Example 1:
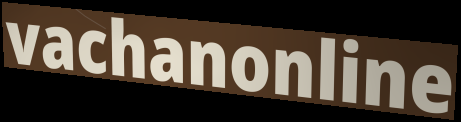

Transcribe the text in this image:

vachanonline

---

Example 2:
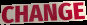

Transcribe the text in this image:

CHANGE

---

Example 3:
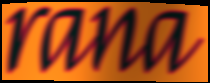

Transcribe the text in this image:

rana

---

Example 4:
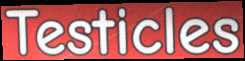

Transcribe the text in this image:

Testicles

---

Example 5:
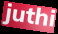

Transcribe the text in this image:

juthi